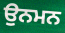
ਉਨਮਨ